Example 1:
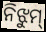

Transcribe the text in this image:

ନିଝୁମ୍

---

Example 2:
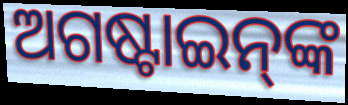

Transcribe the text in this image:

ଅଗଷ୍ଟାଇନ୍‌ଙ୍କ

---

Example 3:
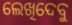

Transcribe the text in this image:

ଲେଖିଦେବୁ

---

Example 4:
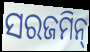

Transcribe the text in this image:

ସରଜମିନ୍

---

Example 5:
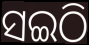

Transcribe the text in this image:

ସଇଠି